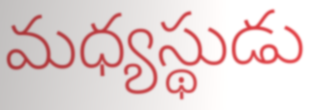
మధ్యస్థుడు